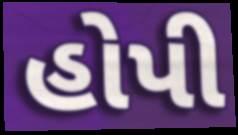
હોપી